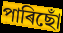
পাৰিছোঁ